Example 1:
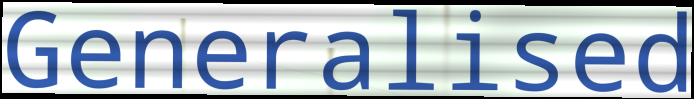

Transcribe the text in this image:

Generalised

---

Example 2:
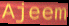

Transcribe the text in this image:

Ajeem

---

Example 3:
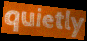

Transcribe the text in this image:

quietly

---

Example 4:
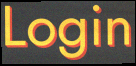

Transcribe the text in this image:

Login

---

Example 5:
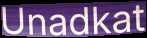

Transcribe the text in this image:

Unadkat